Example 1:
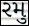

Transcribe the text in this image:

રમુ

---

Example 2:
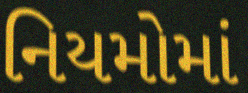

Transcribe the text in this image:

નિયમોમાં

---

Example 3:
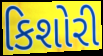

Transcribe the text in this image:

કિશોરી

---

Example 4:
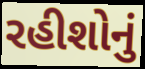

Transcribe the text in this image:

રહીશોનું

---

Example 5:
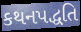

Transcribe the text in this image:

કથનપદ્ધતિ